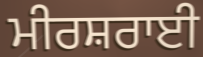
ਮੀਰਸ਼ਰਾਈ